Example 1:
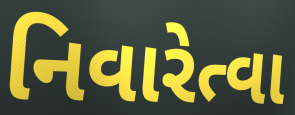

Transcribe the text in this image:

નિવારેત્વા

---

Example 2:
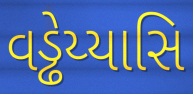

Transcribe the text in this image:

વડ્ઢેય્યાસિ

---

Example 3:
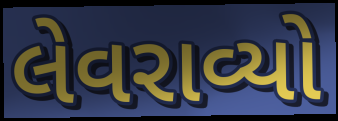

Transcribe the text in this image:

લેવરાવ્યો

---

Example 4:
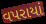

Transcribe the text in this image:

વપરાયાં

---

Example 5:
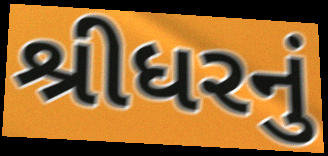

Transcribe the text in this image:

શ્રીધરનું